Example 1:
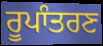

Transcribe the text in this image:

ਰੂਪਾੰਤਰਣ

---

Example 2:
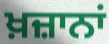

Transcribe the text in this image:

ਖ਼ਜ਼ਾਨਾਂ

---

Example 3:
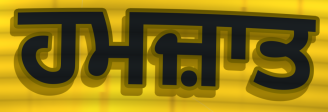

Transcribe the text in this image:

ਹਮਜ਼ਾਤ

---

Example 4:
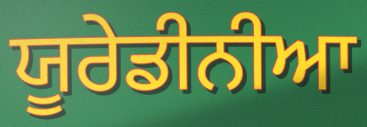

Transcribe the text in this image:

ਯੂਰੇਡੀਨੀਆ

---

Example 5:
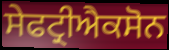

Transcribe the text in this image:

ਸੇਫਟ੍ਰੀਐਕਸੋਨ